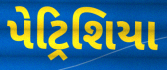
પેટ્રિશિયા